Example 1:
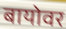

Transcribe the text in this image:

बायोवर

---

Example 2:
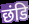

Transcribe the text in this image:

छंडि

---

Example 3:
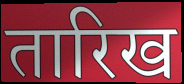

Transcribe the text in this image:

तारिख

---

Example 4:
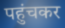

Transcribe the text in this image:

पहुंचकर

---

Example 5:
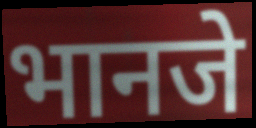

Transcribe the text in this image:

भानजे